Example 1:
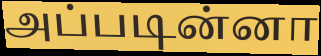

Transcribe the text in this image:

அப்படின்னா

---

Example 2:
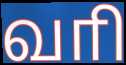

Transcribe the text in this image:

வரி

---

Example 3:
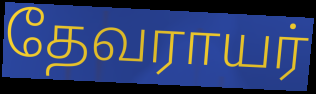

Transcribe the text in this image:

தேவராயர்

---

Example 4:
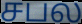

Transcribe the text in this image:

சபல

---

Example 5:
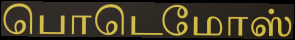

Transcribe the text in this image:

பொடெமோஸ்